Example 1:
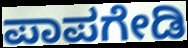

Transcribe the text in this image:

ಪಾಪಗೇಡಿ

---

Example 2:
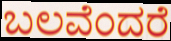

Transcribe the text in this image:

ಬಲವೆಂದರೆ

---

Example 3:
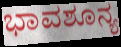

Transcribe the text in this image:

ಭಾವಶೂನ್ಯ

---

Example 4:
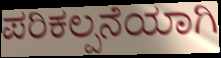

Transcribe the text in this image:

ಪರಿಕಲ್ಪನೆಯಾಗಿ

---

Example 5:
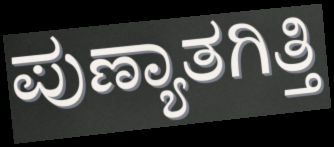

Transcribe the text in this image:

ಪುಣ್ಯಾತಗಿತ್ತಿ